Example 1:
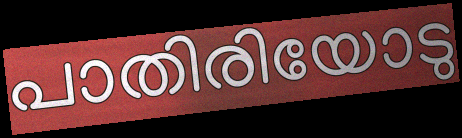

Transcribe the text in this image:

പാതിരിയോടു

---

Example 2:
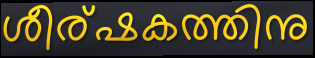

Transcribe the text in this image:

ശീര്ഷകത്തിനു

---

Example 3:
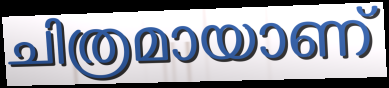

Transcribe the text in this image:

ചിത്രമായാണ്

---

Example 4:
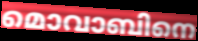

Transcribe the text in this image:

മൊവാബിനെ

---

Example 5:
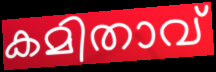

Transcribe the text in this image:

കമിതാവ്